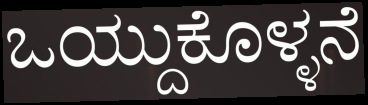
ಒಯ್ದುಕೊಳ್ಳನೆ